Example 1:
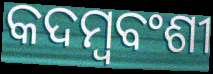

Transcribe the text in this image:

କଦମ୍ବବଂଶୀ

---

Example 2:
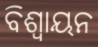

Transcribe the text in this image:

ବିଶ୍ୱାୟନ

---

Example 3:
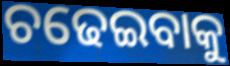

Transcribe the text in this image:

ଚଢେଇବାକୁ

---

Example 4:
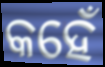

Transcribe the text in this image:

କହେଁ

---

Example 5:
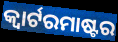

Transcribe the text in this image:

କ୍ୱାର୍ଟରମାଷ୍ଟର